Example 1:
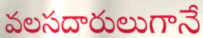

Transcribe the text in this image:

వలసదారులుగానే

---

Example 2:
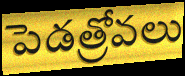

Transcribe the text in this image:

పెడత్రోవలు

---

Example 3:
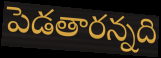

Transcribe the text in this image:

పెడతారన్నది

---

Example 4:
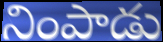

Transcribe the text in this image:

నింపాడు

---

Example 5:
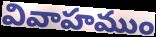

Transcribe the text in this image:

వివాహముం